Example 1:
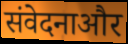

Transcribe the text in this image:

संवेदनाऔर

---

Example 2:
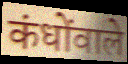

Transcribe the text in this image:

कंधोंवाले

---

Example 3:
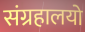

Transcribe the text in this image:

संग्रहालयो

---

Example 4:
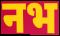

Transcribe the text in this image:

नभ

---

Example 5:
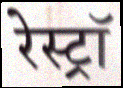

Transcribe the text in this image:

रेस्ट्रॉ